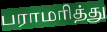
பராமரித்து